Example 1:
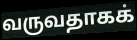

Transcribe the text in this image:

வருவதாகக்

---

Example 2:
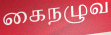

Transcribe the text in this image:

கைநழுவ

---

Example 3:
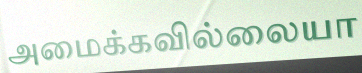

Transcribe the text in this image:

அமைக்கவில்லையா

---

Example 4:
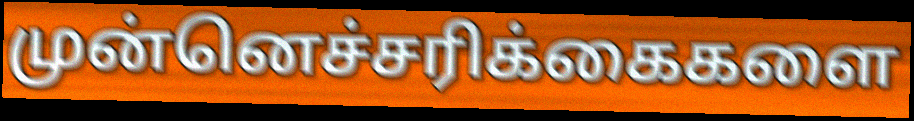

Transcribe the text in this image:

முன்னெச்சரிக்கைகளை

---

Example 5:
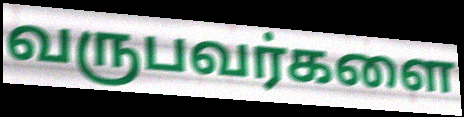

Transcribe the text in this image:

வருபவர்களை